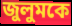
জুলুমকে